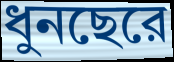
ধুনছেরে